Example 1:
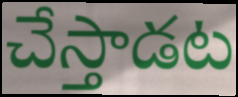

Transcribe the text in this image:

చేస్తాడట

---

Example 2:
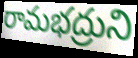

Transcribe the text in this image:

రామభద్రుని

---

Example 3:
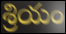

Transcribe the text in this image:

శ్రియం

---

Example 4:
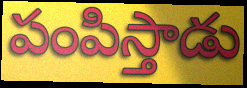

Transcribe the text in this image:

పంపిస్తాడు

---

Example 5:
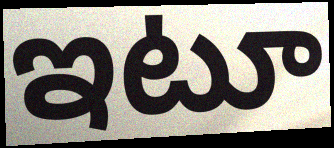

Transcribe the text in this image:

ఇటూ